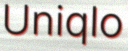
Uniqlo